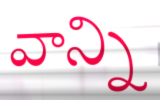
వాన్ని